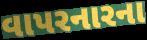
વાપરનારના